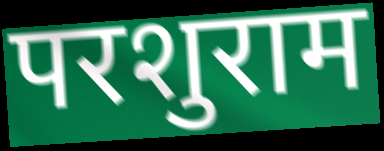
परशुराम